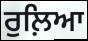
ਰੁਲ਼ਿਆ